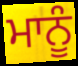
ਮਾਨੂੰ